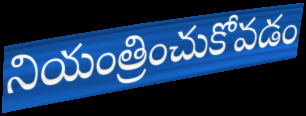
నియంత్రించుకోవడం